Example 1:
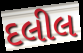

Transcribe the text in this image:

દલીલ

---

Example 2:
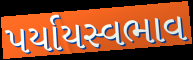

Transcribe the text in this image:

પર્યાયસ્વભાવ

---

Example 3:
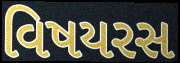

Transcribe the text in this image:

વિષયરસ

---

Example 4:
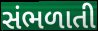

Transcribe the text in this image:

સંભળાતી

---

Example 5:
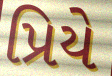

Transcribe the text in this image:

પ્રિયે